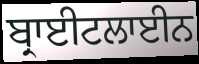
ਬ੍ਰਾਈਟਲਾਈਨ